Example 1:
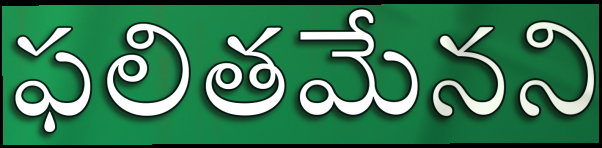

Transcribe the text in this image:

ఫలితమేనని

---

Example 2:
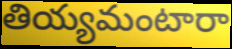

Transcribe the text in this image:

తియ్యమంటారా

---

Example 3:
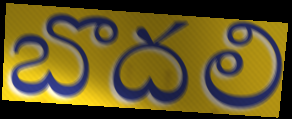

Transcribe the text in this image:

బొదలి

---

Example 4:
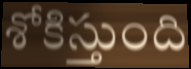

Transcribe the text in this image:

శోకిస్తుంది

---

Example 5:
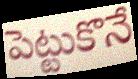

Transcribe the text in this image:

పెట్టుకొనే